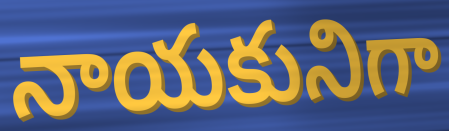
నాయకునిగా